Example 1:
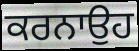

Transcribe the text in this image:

ਕਰਨਾਉਹ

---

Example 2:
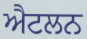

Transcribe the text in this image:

ਐਟਲਨ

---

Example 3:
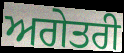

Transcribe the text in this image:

ਅਗੇਤਰੀ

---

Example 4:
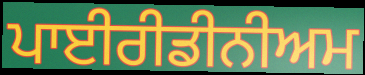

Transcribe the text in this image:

ਪਾਈਰੀਡੀਨੀਅਮ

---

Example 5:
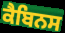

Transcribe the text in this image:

ਕੈਬਿਨਸ